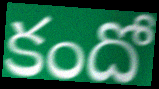
కందో